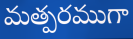
మత్పరముగా